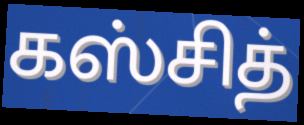
கஸ்சித்